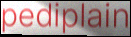
pediplain